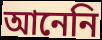
আনেনি